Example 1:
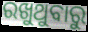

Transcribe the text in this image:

ରଖୁଥୁବାରୁ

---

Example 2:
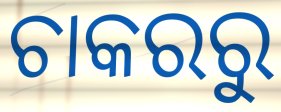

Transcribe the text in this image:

ଚାକରରୁ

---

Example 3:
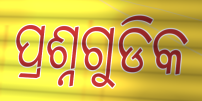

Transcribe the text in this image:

ପ୍ରଶ୍ନଗୁଡିକ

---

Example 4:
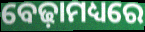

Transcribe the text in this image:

ବେଢ଼ାମଧ୍ୟରେ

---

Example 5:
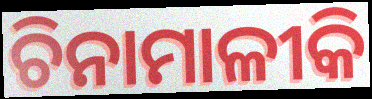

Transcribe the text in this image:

ଚିନାମାଳୀକି